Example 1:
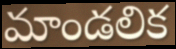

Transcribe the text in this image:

మాండలిక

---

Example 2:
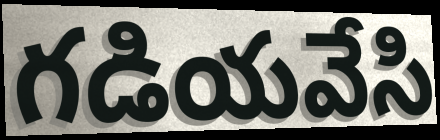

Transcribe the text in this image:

గడియవేసి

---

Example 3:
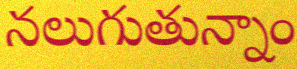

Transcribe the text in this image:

నలుగుతున్నాం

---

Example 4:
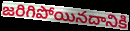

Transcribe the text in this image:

జరిగిపోయినదానికి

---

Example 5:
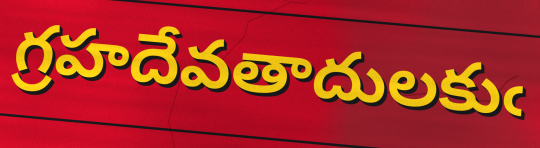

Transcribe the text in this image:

గ్రహదేవతాదులకుఁ